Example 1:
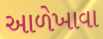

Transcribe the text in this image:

આળેખાવા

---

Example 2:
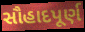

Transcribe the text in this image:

સૌહાદપૂર્ણ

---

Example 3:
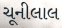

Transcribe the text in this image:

ચૂનીલાલ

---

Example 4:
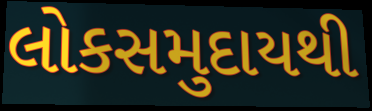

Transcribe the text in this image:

લોકસમુદાયથી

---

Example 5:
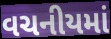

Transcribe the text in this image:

વચનીયમાં